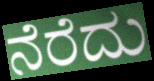
ನೆರೆದು